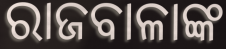
ରାଜବାଳାଙ୍କ